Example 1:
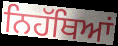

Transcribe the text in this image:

ਨਿਹੱਥਿਆਂ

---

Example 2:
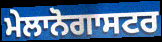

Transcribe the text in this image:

ਮੇਲਾਨੋਗਾਸਟਰ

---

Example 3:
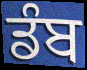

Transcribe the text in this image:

ਡੰਬ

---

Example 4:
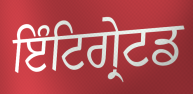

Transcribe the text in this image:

ਇੰਟਿਗ੍ਰੇਟਡ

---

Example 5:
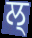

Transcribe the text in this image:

ਲ੍